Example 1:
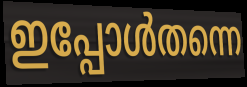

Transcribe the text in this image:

ഇപ്പോൾതന്നെ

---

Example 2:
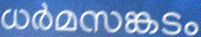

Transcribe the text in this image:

ധർമസങ്കടം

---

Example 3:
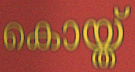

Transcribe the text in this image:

കൊയ്ത്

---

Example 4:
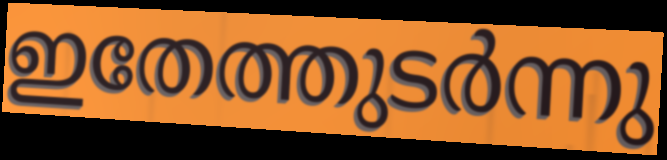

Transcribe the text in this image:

ഇതേത്തുടർന്നു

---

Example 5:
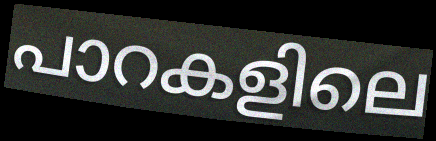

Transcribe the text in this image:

പാറകളിലെ